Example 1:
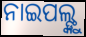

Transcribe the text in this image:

ନାଇପଲ୍ଙ୍କୁ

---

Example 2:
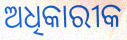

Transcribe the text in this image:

ଅଧିକାରୀକ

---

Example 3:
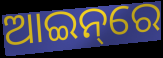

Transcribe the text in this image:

ଆଇନ୍‌ରେ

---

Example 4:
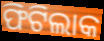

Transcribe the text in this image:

ଫିଟିଲାକ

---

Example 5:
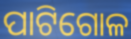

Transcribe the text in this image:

ପାଟିଗୋଳ